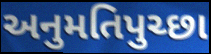
અનુમતિપુચ્છા